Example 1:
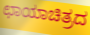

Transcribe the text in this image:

ಛಾಯಾಚಿತ್ರದ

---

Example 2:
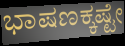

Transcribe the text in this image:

ಭಾಷಣಕ್ಕಷ್ಟೇ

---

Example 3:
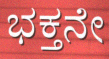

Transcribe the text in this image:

ಭಕ್ತನೇ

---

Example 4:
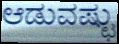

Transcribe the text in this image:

ಆಡುವಷ್ಟು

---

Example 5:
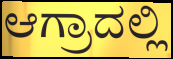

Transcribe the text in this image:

ಆಗ್ರಾದಲ್ಲಿ